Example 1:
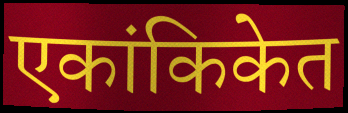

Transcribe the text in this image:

एकांकिकेत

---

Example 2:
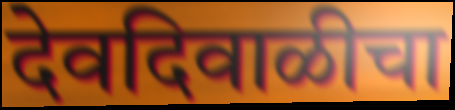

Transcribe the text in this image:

देवदिवाळीचा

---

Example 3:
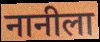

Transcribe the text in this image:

नानीला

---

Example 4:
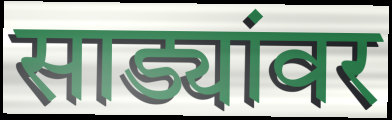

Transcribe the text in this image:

साड्यांवर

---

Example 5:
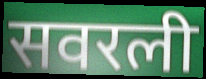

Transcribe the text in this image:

सवरली